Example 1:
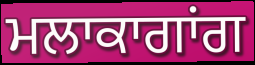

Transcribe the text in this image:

ਮਲਾਕਾਗਾਂਗ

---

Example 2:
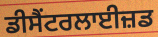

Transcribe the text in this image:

ਡੀਸੈਂਟਰਲਾਈਜ਼ਡ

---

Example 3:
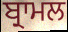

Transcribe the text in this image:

ਬ੍ਰਾਮਲ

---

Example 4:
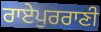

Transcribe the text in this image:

ਰਾਏਪੁਰਰਾਣੀ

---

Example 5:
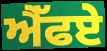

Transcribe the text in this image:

ਐੱਫਏ